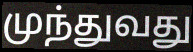
முந்துவது